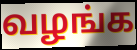
வழங்க